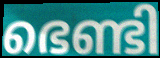
ഭെണ്ടി